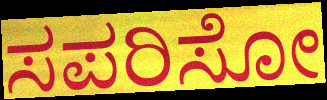
ಸಪರಿಸೋ